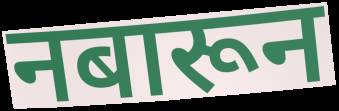
नबारून